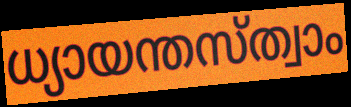
ധ്യായന്തസ്ത്വാം